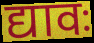
द्यावः